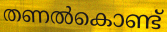
തണൽകൊണ്ട്